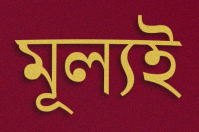
মূল্যই